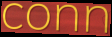
conn